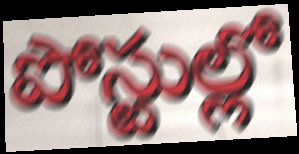
పోస్టుల్లో